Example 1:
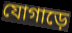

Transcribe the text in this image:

যোগাড়ে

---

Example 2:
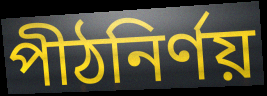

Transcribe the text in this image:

পীঠনির্ণয়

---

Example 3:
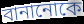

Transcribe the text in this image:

বানানোকে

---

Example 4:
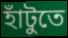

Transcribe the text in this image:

হাঁটুতে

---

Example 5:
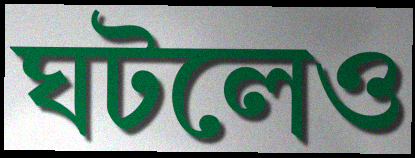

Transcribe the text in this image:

ঘটলেও